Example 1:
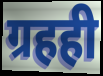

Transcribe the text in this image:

ग्रहही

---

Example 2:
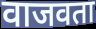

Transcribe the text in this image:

वाजवता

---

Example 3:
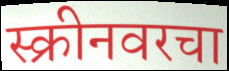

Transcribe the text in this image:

स्क्रीनवरचा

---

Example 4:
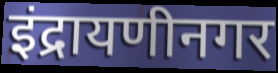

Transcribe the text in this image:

इंद्रायणीनगर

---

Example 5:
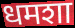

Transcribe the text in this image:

धमशा